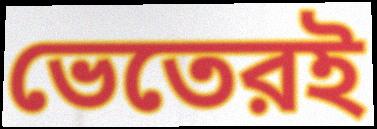
ভেতেরই